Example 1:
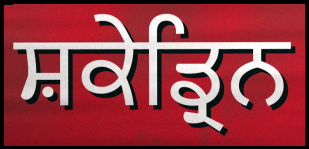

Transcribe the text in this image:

ਸ਼ਕੇਡ੍ਰਿਨ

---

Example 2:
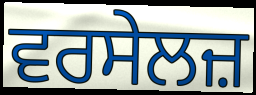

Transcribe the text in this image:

ਵਰਸੇਲਜ਼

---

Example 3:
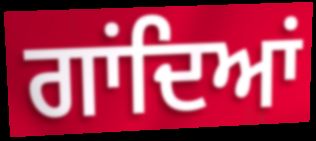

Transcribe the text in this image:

ਗਾਂਦਿਆਂ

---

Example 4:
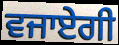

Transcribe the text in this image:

ਵਜਾਏਗੀ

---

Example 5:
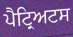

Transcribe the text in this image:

ਪੈਟ੍ਰਿਅਟਸ